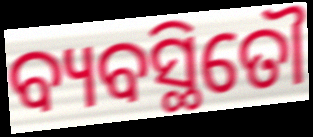
ବ୍ୟବସ୍ଥିତୌ